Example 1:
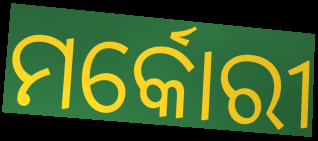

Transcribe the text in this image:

ମର୍କୋରୀ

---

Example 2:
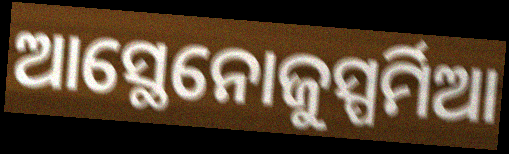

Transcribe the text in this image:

ଆସ୍ଥେନୋଜୁସ୍ପର୍ମିଆ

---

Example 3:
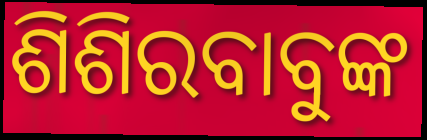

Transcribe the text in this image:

ଶିଶିରବାବୁଙ୍କ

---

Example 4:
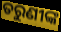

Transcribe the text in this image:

ତରୁଣୀଙ୍କ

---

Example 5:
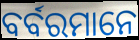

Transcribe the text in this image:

ବର୍ବରମାନେ